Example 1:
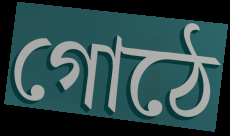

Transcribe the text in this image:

গোঠে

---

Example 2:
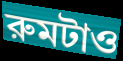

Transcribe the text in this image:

রুমটাও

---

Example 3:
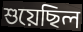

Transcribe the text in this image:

শুয়েছিল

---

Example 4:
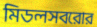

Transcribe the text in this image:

মিডলসবরোর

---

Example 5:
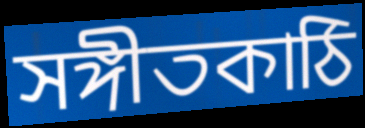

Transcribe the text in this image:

সঙ্গীতকাঠি